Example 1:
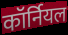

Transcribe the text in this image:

कॉर्नियल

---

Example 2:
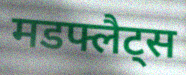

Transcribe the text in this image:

मडफ्लैट्स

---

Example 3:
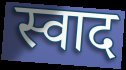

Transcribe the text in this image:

स्वाद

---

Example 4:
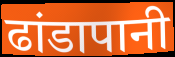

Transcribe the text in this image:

ढांडापानी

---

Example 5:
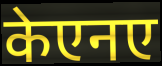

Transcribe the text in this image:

केएनए